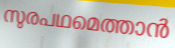
സുരപഥമെത്താൻ